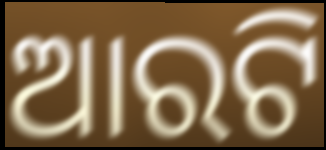
ଆରଟି